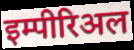
इम्पीरिअल